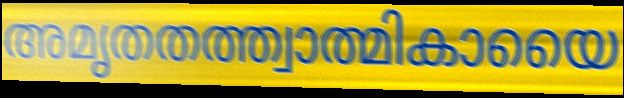
അമൃതതത്ത്വാത്മികായൈ